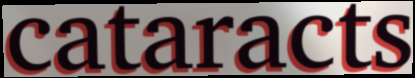
cataracts